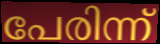
പേരിന്ന്